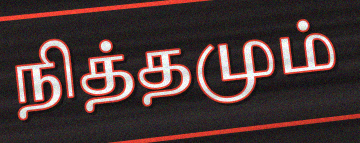
நித்தமும்